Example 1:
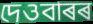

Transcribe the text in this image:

দেওবাৰৰ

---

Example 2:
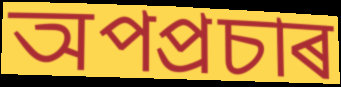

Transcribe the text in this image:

অপপ্ৰচাৰ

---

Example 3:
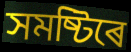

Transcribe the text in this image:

সমষ্টিৰে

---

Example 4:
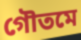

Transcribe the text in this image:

গৌতমে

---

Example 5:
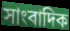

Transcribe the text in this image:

সাংবাদিক